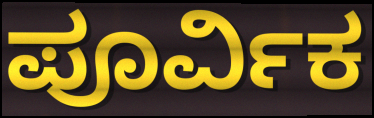
ಪೂರ್ವಿಕ